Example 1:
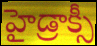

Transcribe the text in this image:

హైడ్రాక్సీ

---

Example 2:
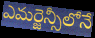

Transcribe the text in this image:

ఎమర్జెన్సీలోనే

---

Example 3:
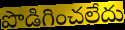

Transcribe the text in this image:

పొడిగించలేదు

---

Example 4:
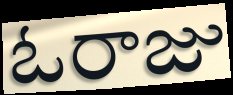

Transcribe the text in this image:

ఓరాజు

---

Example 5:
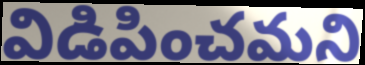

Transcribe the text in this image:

విడిపించమని